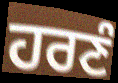
ਹਰਣੰ